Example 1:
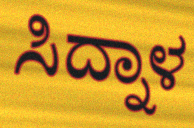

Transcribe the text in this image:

ಸಿದ್ನಾಳ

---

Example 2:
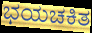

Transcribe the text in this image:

ಭಯಚಕಿತ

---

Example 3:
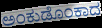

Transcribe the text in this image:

ಅಂಕುಡೊಂಕಾದ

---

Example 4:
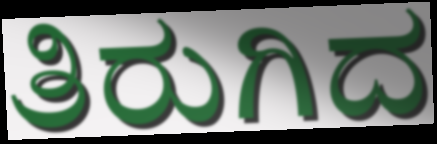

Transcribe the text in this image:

ತಿರುಗಿದ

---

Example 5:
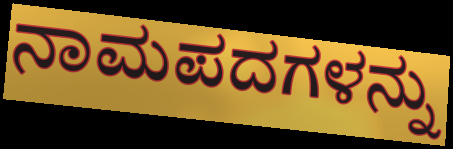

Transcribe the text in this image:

ನಾಮಪದಗಳನ್ನು